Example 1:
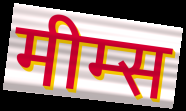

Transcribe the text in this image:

मीम्स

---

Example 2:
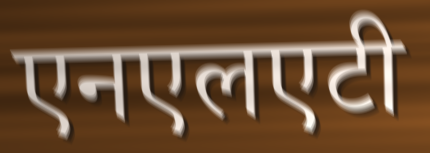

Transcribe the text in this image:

एनएलएटी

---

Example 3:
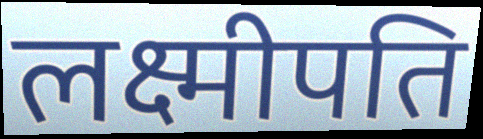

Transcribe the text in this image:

लक्ष्मीपति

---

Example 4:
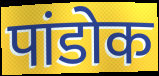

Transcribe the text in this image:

पांडोक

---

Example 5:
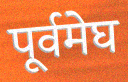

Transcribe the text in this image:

पूर्वमेघ